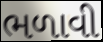
ભળાવી